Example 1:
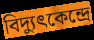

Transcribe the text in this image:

বিদ্যুৎকেন্দ্রে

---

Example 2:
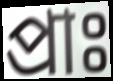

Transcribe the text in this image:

প্রাঃ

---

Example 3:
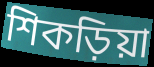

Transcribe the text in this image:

শিকড়িয়া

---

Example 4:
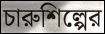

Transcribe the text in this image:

চারুশিল্পের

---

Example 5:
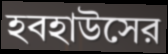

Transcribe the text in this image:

হবহাউসের